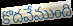
కొదవేముంది